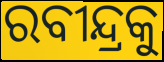
ରବୀନ୍ଦ୍ରକୁ